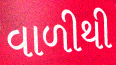
વાળીથી